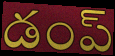
డంప్